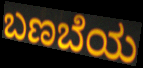
ಬಣಬೆಯ